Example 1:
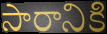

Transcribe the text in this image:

సారానికి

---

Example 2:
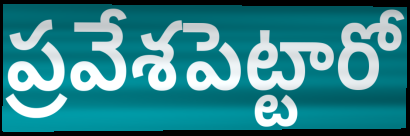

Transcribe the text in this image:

ప్రవేశపెట్టారో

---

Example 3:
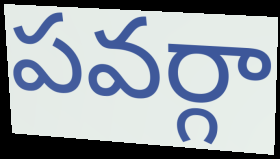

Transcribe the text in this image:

పవర్గా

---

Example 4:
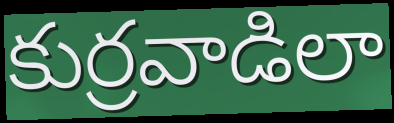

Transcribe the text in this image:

కుర్రవాడిలా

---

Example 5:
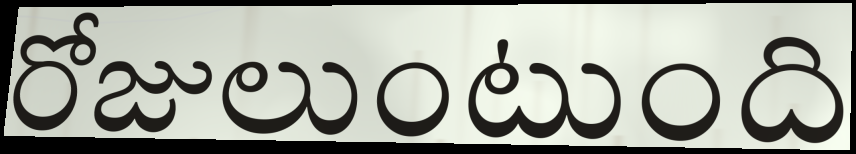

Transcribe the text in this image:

రోజులుంటుంది